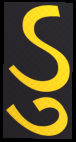
ડુ